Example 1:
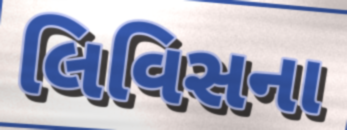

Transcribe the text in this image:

લિવિસના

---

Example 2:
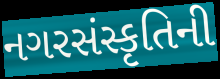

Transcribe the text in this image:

નગરસંસ્કૃતિની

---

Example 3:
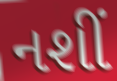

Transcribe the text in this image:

નશીં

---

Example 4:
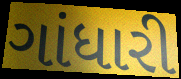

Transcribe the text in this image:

ગાંધારી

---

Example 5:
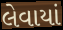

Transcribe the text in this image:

લેવાયાં